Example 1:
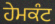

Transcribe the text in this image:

ਹੇਮਕੰਟ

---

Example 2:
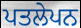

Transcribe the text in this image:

ਪਤਲੇਪਨ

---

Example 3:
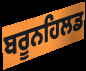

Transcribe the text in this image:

ਬਰੂਨਹਿਲਡ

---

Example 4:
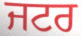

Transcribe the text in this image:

ਜਟਰ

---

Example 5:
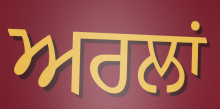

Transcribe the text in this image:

ਅਰਲਾਂ